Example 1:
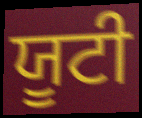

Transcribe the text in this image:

ਯੂਟੀ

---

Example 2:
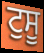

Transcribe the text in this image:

ਟੁਸੂ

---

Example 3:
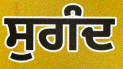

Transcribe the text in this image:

ਸੁਗੰਦ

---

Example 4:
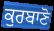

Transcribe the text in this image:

ਕੁਰਬਾਣੋ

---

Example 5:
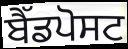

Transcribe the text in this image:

ਬੈੱਡਪੋਸਟ